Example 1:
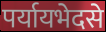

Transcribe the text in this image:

पर्यायभेदसे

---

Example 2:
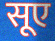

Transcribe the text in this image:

सूए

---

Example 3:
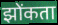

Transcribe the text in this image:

झोंकता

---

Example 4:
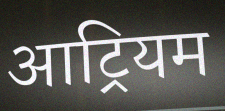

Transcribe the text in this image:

आट्रियम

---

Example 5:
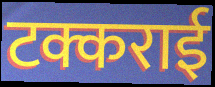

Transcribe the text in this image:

टक्कराई